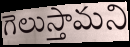
గెలుస్తామని